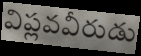
విప్లవవీరుడు